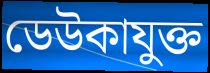
ডেউকাযুক্ত